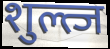
शुल्त्ज